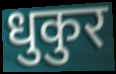
धुकुर